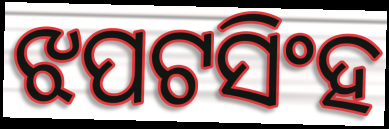
ଝପଟସିଂହ